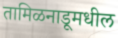
तामिळनाडूमधील